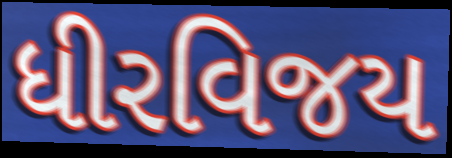
ધીરવિજય